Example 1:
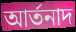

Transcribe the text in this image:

আৰ্তনাদ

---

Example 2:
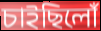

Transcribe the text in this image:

চাইছিলোঁ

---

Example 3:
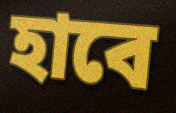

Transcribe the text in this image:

হাবে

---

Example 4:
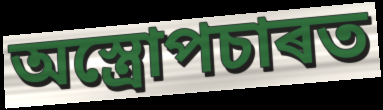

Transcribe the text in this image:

অস্ত্ৰোপচাৰত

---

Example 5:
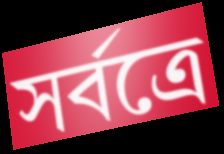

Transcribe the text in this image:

সৰ্বত্ৰে